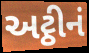
અટ્ઠીનં